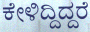
ಕೇಳಿದ್ದಿದ್ದರೆ